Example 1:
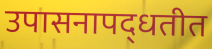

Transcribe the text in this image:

उपासनापद्धतीत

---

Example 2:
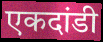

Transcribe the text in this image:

एकदांडी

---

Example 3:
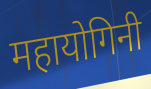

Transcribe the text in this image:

महायोगिनी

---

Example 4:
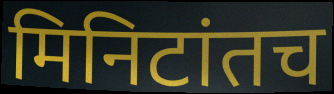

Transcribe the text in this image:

मिनिटांतच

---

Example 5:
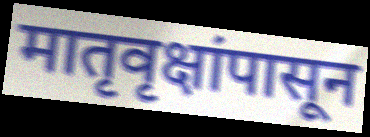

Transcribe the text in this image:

मातृवृक्षांपासून